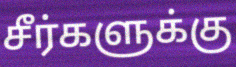
சீர்களுக்கு